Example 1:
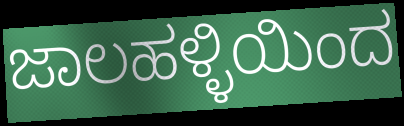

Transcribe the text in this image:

ಜಾಲಹಳ್ಳಿಯಿಂದ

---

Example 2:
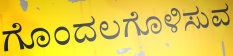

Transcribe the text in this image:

ಗೊಂದಲಗೊಳಿಸುವ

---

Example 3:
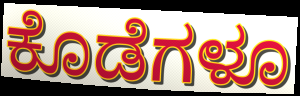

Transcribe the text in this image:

ಕೊಡೆಗಳೂ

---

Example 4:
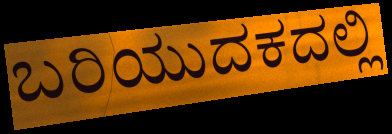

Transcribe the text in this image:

ಬರಿಯುದಕದಲ್ಲಿ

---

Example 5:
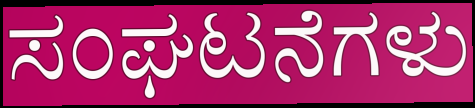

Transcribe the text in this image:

ಸಂಘಟನೆಗಳು